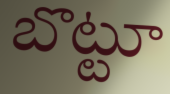
బొట్టూ